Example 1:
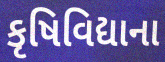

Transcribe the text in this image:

કૃષિવિદ્યાના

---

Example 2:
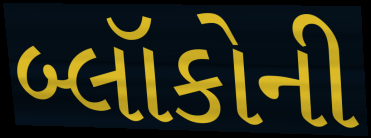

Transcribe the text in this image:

બ્લૉકોની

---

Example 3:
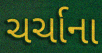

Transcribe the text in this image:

ચર્ચાના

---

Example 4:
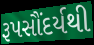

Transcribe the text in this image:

રૂપસૌંદર્યથી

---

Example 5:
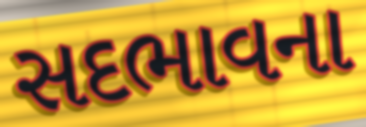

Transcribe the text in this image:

સદભાવના